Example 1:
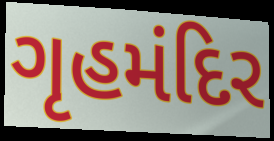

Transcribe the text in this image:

ગૃહમંદિર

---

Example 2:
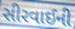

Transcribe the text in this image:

સીરવાઈની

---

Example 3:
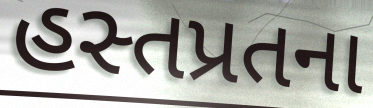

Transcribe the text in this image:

હસ્તપ્રતના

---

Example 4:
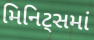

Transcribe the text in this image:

મિનિટ્સમાં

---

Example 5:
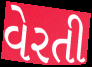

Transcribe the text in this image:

વેરતી